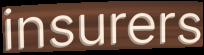
insurers